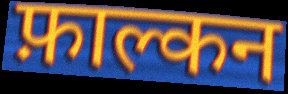
फ़ाल्कन